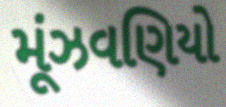
મૂંઝવણિયો